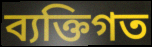
ব্যক্তিগত